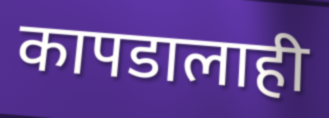
कापडालाही